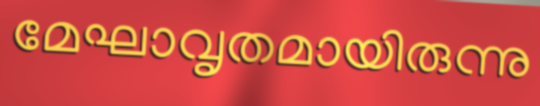
മേഘാവൃതമായിരുന്നു